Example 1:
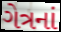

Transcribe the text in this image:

ગેત્રનાં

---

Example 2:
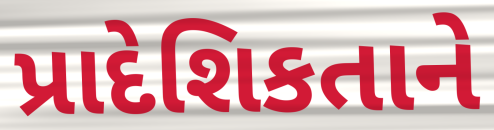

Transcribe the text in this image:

પ્રાદેશિકતાને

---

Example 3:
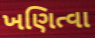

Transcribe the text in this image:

ખણિત્વા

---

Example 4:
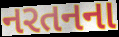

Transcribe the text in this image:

નરતનના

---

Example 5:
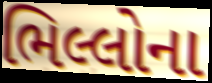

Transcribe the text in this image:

ભિલ્લોના